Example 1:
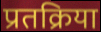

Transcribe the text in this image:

प्रतक्रिया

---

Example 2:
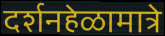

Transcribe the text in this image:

दर्शनहेळामात्रे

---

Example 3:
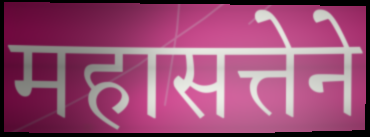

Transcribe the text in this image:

महासत्तेने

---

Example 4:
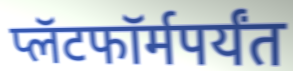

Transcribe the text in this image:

प्लॅटफॉर्मपर्यंत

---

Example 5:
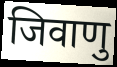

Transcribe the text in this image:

जिवाणु